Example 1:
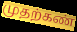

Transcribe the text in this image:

முதற்கண்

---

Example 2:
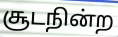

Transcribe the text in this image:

சூடநின்ற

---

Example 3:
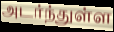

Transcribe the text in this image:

அடர்ந்துள்ள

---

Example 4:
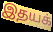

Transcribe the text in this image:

இதயக்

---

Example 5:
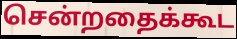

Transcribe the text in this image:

சென்றதைக்கூட